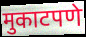
मुकाटपणे